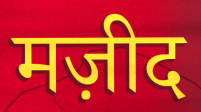
मज़ीद